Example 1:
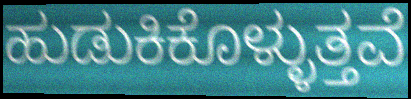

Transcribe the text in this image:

ಹುಡುಕಿಕೊಳ್ಳುತ್ತವೆ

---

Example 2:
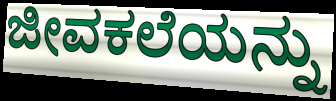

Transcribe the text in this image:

ಜೀವಕಲೆಯನ್ನು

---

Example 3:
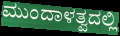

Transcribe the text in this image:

ಮುಂದಾಳತ್ವದಲ್ಲಿ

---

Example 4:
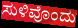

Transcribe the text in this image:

ಸುಳಿವೊಂದು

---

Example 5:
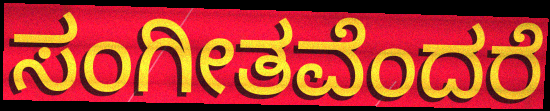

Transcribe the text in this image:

ಸಂಗೀತವೆಂದರೆ